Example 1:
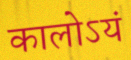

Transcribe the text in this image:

कालोऽयं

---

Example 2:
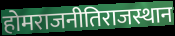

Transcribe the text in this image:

होमराजनीतिराजस्थान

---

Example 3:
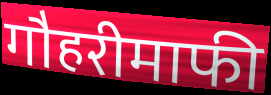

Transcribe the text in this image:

गौहरीमाफी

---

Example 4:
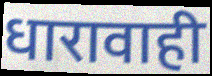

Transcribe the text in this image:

धारावाही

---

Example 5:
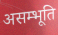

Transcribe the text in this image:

असम्भूति